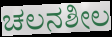
ಚಲನಶೀಲ